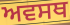
ਅਵਸਥ